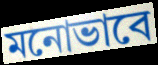
মনোভাবে